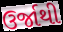
ઉર્જાથી